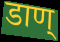
डाण्